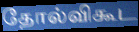
தோல்விகூட